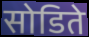
सोडिते